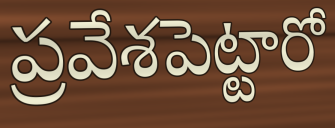
ప్రవేశపెట్టారో